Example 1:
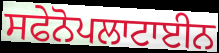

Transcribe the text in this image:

ਸਫੇਨੋਪਲਾਟਾਈਨ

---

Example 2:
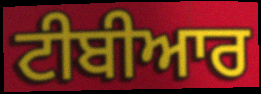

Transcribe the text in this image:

ਟੀਬੀਆਰ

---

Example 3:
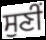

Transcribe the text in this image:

ਸੁਣੀਂ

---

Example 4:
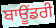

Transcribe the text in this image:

ਬਾਊਂਡਰੀ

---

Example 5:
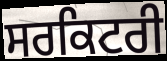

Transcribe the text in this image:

ਸਰਕਿਟਰੀ